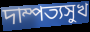
দাম্পত্যসুখ